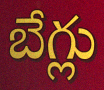
బేగ్లు